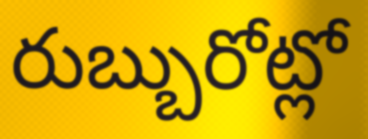
రుబ్బురోట్లో